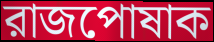
রাজপোষাক